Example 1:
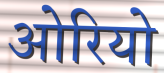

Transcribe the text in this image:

ओरियो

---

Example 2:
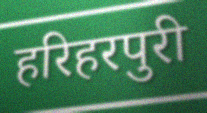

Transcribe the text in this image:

हरिहरपुरी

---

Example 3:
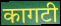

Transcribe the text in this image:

कागटी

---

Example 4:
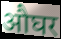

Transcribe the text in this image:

औघर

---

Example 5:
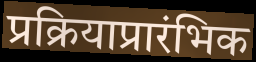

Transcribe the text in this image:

प्रक्रियाप्रारंभिक